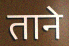
ताने